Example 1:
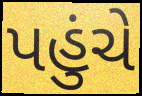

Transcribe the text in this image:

પહુંચે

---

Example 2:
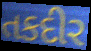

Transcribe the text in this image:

તકદીર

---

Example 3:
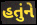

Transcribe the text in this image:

હતુંને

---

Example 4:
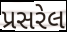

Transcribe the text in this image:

પ્રસરેલ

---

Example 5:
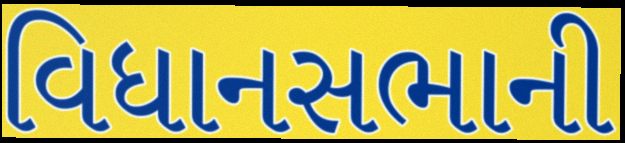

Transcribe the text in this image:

વિધાનસભાની